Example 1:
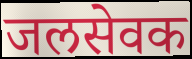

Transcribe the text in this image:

जलसेवक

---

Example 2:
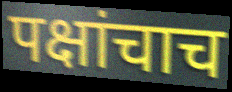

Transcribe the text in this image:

पक्षांचाच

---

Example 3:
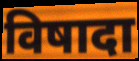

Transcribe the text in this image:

विषादा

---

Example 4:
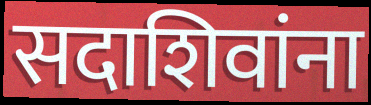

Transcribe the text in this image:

सदाशिवांना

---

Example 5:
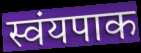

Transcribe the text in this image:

स्वंयपाक